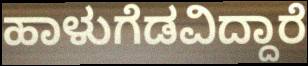
ಹಾಳುಗೆಡವಿದ್ದಾರೆ